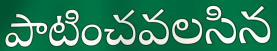
పాటించవలసిన